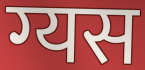
ग्यस